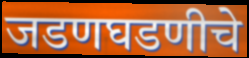
जडणघडणीचे